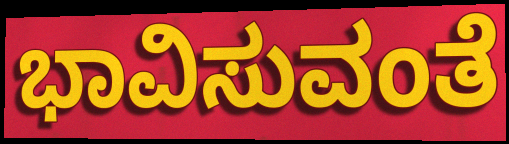
ಭಾವಿಸುವಂತೆ